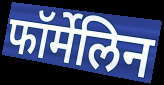
फॉर्मेलिन